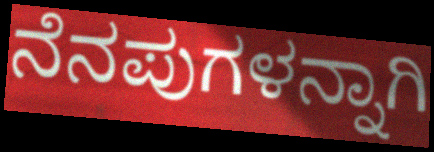
ನೆನಪುಗಳನ್ನಾಗಿ